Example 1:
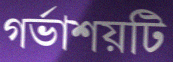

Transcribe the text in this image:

গর্ভাশয়টি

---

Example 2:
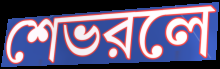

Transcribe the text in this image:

শেভরলে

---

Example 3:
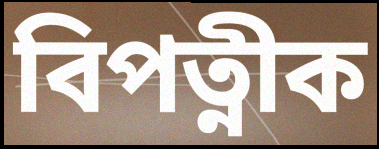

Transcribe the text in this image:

বিপত্নীক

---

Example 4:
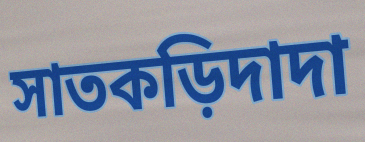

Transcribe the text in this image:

সাতকড়িদাদা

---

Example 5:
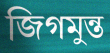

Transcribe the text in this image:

জিগমুন্ত